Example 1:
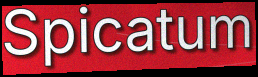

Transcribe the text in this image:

Spicatum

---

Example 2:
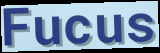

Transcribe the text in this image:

Fucus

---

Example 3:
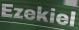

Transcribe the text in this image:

Ezekiel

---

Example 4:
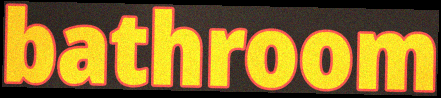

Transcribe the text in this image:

bathroom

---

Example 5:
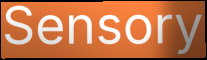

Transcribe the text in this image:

Sensory